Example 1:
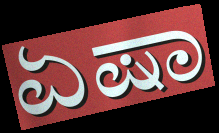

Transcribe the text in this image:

ಏಷಾ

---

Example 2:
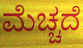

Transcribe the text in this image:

ಮೆಚ್ಚದೆ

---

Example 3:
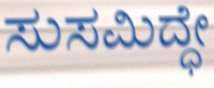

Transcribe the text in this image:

ಸುಸಮಿದ್ಧೇ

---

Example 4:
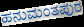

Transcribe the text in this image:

ಹನುಮಂತಪುರ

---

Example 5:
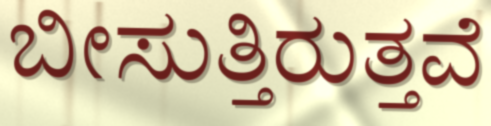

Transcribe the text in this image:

ಬೀಸುತ್ತಿರುತ್ತವೆ